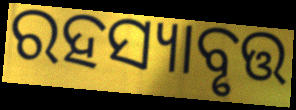
ରହସ୍ୟାବୃତ୍ତ